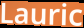
Lauric